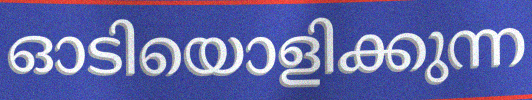
ഓടിയൊളിക്കുന്ന